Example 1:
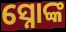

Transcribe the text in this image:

ସ୍ନୋଙ୍କ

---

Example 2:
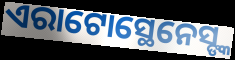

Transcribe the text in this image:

ଏରାଟୋସ୍ଥେନେସ୍ଙ୍କ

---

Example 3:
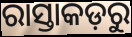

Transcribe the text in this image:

ରାସ୍ତାକଡ଼ରୁ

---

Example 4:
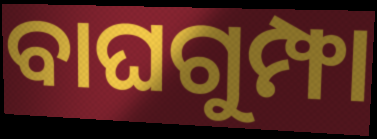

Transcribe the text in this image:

ବାଘଗୁମ୍ଫା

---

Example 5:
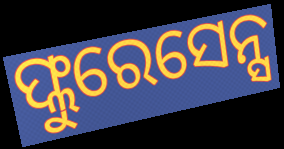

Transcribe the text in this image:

ଫ୍ଲୁରେସେନ୍ସ